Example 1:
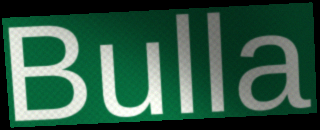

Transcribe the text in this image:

Bulla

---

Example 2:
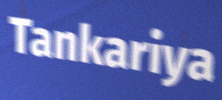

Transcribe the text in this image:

Tankariya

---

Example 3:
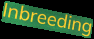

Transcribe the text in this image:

Inbreeding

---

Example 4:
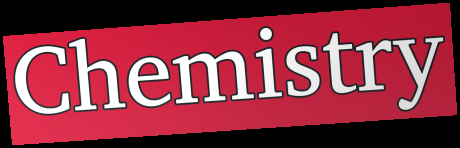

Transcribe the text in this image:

Chemistry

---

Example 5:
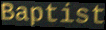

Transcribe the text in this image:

Baptist